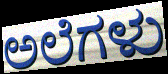
ಅಲೆಗಳು